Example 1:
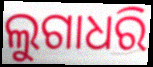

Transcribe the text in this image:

ଲୁଗାଧରି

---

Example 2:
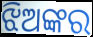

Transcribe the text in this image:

ଝିଅଙ୍କର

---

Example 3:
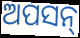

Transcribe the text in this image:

ଅପସନ୍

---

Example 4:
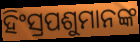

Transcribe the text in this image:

ହିଂସ୍ରପଶୁମାନଙ୍କ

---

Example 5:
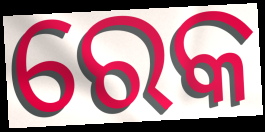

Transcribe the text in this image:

ରେକ